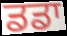
ਡਡਾ